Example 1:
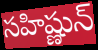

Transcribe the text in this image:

సహిష్ణున్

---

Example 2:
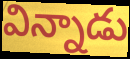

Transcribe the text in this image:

విన్నాడు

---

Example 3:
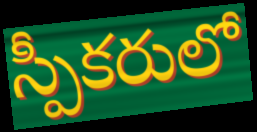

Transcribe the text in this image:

స్పీకరులో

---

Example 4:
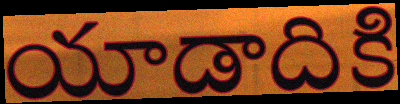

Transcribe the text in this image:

యాడాదికి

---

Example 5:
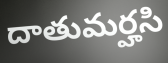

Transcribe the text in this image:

దాతుమర్హసి